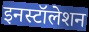
इनस्टॉलेशन